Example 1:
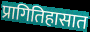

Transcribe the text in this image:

प्रागितिहासात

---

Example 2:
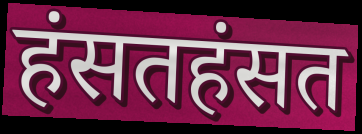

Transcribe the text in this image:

हंसतहंसत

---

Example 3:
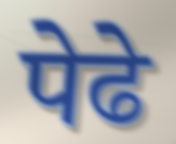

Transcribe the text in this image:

पेढे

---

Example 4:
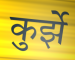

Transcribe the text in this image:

कुर्झे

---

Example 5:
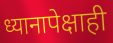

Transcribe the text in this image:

ध्यानापेक्षाही